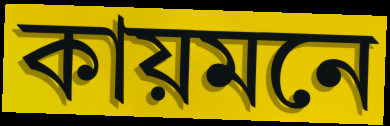
কায়মনে